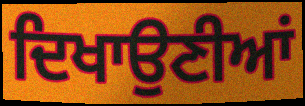
ਦਿਖਾਉਣੀਆਂ